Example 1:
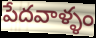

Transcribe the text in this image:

పేదవాళ్ళం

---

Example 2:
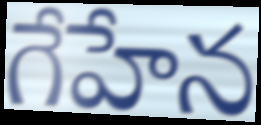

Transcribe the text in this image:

గేహేన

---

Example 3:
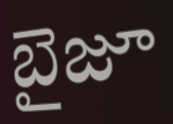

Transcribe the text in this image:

బైజూ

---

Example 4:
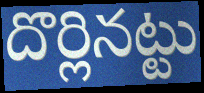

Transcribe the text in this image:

దొర్లినట్టు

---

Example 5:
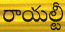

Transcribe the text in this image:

రాయల్టీ